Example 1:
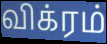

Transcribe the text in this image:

விக்ரம்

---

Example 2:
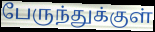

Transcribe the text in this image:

பேருந்துக்குள்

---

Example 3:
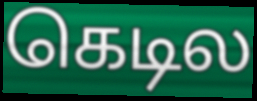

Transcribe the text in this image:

கெடில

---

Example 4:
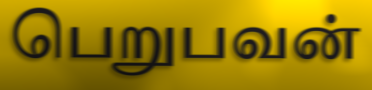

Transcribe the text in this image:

பெறுபவன்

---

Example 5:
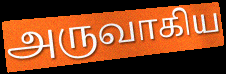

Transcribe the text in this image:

அருவாகிய